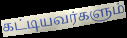
கட்டியவர்களும்